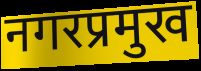
नगरप्रमुख